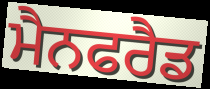
ਮੈਨਫਰੈਡ